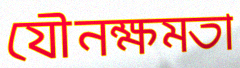
যৌনক্ষমতা